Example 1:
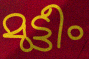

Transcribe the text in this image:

മുട്ടീം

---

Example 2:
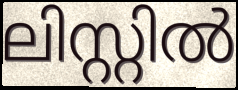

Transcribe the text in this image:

ലിസ്റ്റിൽ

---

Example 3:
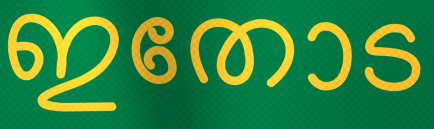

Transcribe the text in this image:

ഇതോട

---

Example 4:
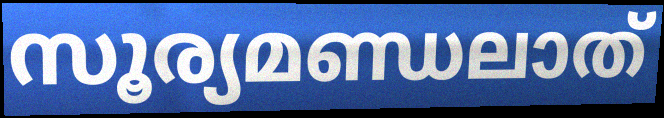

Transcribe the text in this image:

സൂര്യമണ്ഡലാത്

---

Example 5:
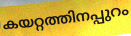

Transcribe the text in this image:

കയറ്റത്തിനപ്പുറം